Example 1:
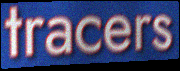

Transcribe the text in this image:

tracers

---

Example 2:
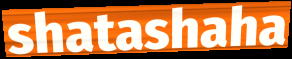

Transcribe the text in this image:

shatashaha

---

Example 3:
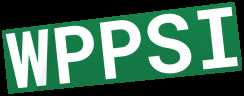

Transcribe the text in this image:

WPPSI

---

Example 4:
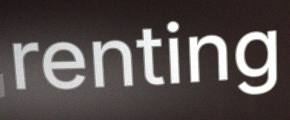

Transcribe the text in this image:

renting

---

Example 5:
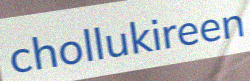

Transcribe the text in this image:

chollukireen